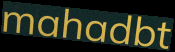
mahadbt